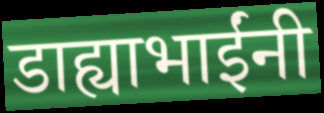
डाह्याभाईंनी